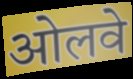
ओलवे